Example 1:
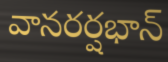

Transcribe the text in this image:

వానరర్షభాన్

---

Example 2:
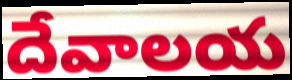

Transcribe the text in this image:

దేవాలయ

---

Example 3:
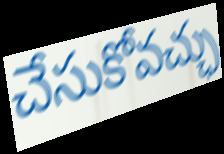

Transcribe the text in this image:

చేసుకోవచ్ఛు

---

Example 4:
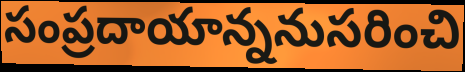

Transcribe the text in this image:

సంప్రదాయాన్ననుసరించి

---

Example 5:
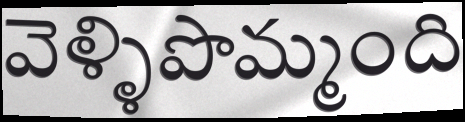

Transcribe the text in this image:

వెళ్ళిపొమ్మంది